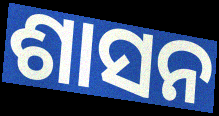
ଶାସନ